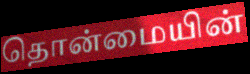
தொன்மையின்